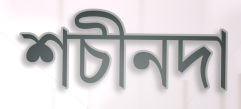
শচীনদা